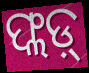
ଫ୍ଲଡ଼୍